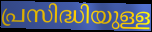
പ്രസിദ്ധിയുള്ള